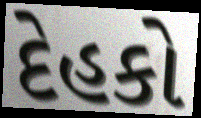
દેહકો